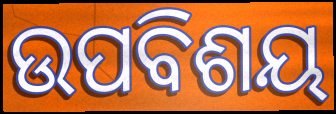
ଉପବିଶୟ